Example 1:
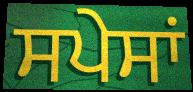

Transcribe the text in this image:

ਸਪੇਸਾਂ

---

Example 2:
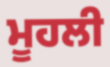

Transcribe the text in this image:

ਮੂਹਲੀ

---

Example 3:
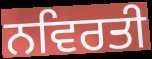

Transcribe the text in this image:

ਨਵਿਰਤੀ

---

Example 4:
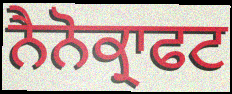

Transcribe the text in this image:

ਨੈਨੋਕ੍ਰਾਫਟ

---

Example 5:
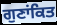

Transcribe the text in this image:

ਗੁਣਾਂਕਿਤ